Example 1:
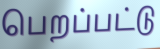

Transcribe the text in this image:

பெறப்பட்டு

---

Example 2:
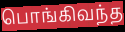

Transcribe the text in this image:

பொங்கிவந்த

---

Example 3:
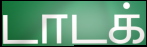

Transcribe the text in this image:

டாடக்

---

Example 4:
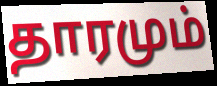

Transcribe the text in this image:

தாரமும்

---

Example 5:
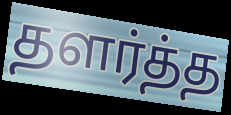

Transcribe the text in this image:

தளர்த்த